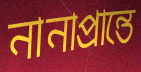
নানাপ্রান্তে